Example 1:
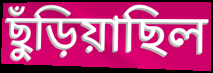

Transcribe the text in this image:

ছুঁড়িয়াছিল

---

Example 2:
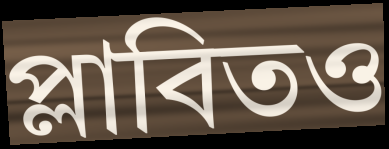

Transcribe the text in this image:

প্লাবিতও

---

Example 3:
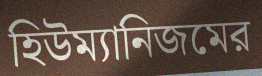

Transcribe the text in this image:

হিউম্যানিজমের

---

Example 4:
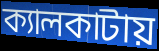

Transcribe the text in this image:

ক্যালকাটায়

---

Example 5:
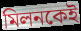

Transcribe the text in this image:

মিলনকেই